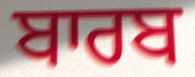
ਬਾਰਬ